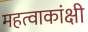
महत्वाकांक्षी